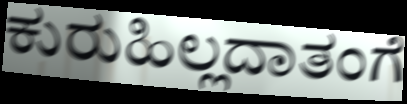
ಕುರುಹಿಲ್ಲದಾತಂಗೆ